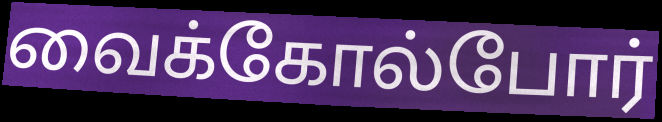
வைக்கோல்போர்